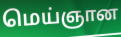
மெய்ஞான